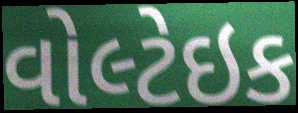
વોલ્ટેઇક